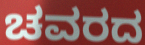
ಚವರದ